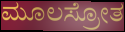
ಮೂಲಸ್ರೋತ